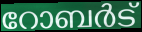
റോബർട്